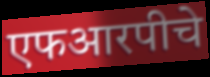
एफआरपीचे